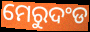
ମେରୁଦଂଡ